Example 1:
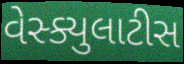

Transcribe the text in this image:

વેસ્ક્યુલાટીસ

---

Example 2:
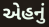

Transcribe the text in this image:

એહનું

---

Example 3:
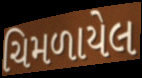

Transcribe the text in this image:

ચિમળાયેલ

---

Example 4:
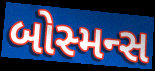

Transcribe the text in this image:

બોસ્મન્સ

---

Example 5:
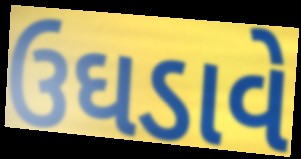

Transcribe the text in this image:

ઉઘડાવે